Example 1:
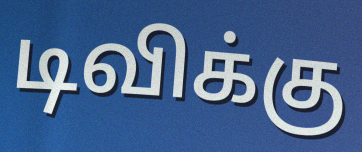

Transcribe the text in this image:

டிவிக்கு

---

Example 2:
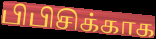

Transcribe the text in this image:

பிபிசிக்காக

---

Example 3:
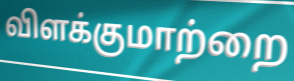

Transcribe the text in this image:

விளக்குமாற்றை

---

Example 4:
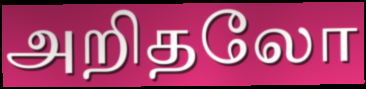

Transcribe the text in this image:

அறிதலோ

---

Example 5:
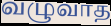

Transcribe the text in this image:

வழுவாத